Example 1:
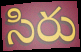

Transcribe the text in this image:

సిరు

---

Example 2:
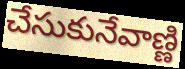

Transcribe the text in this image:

చేసుకునేవాణ్ణి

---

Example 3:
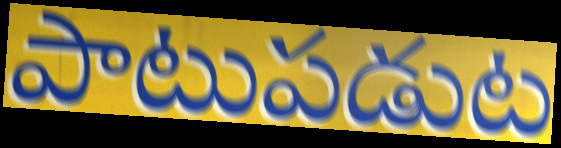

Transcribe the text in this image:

పాటుపడుట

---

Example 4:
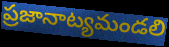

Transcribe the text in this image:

ప్రజానాట్యమండలి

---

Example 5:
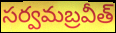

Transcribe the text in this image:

సర్వమబ్రవీత్